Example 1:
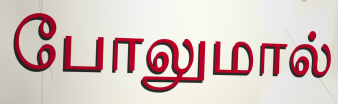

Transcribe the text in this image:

போலுமால்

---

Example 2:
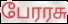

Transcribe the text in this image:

பேரரசு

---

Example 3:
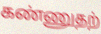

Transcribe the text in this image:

கண்ணுதற்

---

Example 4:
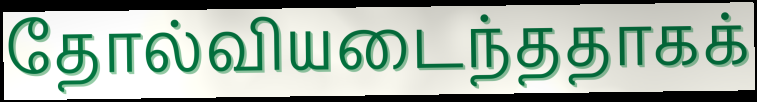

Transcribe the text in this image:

தோல்வியடைந்ததாகக்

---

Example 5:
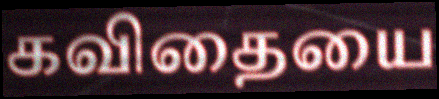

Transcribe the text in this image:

கவிதையை